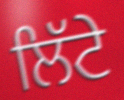
ਲਿੱਟੇ